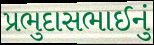
પ્રભુદાસભાઈનું